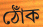
ঠোঁক